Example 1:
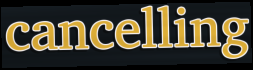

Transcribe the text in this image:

cancelling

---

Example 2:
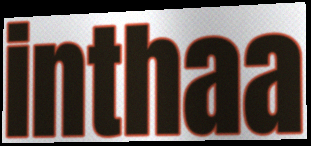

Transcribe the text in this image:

inthaa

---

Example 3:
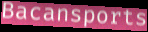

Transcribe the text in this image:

Bacansports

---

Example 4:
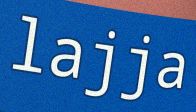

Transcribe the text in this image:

lajja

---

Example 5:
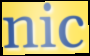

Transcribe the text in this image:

nic